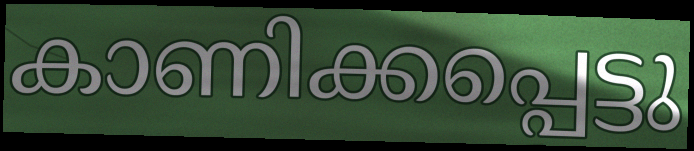
കാണിക്കപ്പെട്ടു